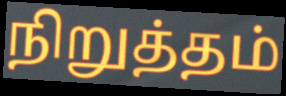
நிறுத்தம்